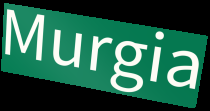
Murgia